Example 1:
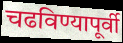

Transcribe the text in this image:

चढविण्यापूर्वी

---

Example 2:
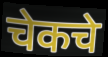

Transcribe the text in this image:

चेकचे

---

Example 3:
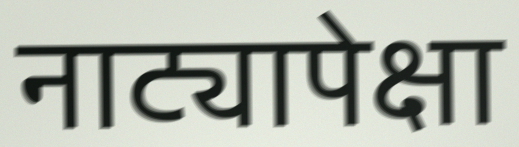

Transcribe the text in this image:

नाट्यापेक्षा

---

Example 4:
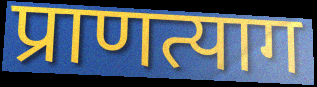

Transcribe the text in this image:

प्राणत्याग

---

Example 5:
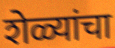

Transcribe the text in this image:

शेळ्यांचा